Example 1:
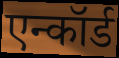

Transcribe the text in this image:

एन्कॉर्ड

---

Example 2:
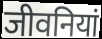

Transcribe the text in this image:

जीवनियां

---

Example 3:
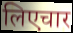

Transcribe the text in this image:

लिएचार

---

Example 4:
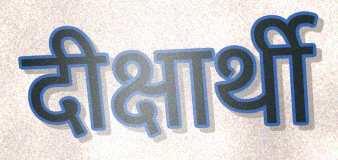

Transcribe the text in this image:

दीक्षार्थी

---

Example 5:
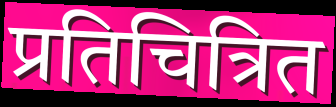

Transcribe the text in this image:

प्रतिचित्रित